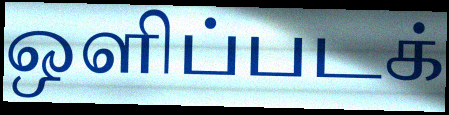
ஒளிப்படக்